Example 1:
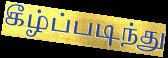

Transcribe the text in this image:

கீழ்ப்படிந்து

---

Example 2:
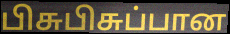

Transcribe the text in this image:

பிசுபிசுப்பான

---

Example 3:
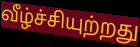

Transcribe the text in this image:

வீழ்ச்சியுற்றது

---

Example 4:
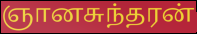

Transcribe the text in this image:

ஞானசுந்தரன்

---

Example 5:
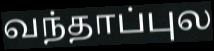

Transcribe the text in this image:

வந்தாப்புல